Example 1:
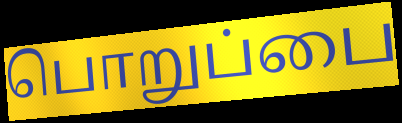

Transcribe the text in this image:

பொறுப்பை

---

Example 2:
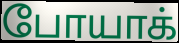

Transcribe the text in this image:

போயாக்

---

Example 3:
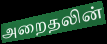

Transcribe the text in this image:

அறைதலின்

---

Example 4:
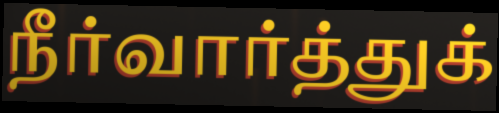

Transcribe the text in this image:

நீர்வார்த்துக்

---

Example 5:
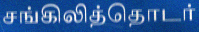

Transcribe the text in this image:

சங்கிலித்தொடர்